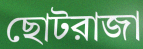
ছোটরাজা